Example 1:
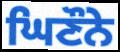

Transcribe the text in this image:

ਘਿਣੌਨੇ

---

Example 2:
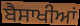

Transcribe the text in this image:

ਬੈਸਾਖੀਆਂ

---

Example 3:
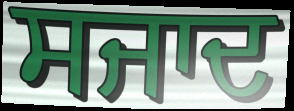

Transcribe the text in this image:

ਸਜਾਦ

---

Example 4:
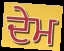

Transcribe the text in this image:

ਦੇਮ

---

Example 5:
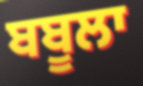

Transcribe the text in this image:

ਬਬੂਲਾ